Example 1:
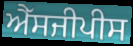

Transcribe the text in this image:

ਐੱਸਜੀਪੀਸ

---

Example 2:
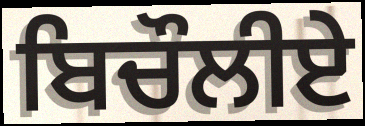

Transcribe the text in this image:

ਬਿਚੌਲੀਏ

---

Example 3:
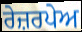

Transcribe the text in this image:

ਰੇਜ਼ਰਪੇਅ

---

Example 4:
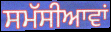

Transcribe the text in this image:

ਸਮੱਸੀਆਵਾਂ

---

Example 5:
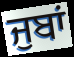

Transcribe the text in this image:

ਜੁਬਾਂ